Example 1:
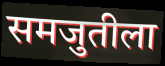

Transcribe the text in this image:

समजुतीला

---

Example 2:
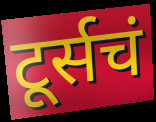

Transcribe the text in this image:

टूर्सचं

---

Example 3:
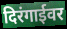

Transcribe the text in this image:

दिरंगाईवर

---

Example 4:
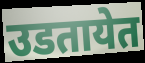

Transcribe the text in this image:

उडतायेत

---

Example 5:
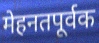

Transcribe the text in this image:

मेहनतपूर्वक